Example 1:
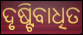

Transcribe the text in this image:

ଦୃଷ୍ଟିବାଧିତ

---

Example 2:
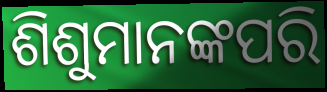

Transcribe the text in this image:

ଶିଶୁମାନଙ୍କପରି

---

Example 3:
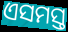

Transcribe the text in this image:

ଏସମସ୍ତ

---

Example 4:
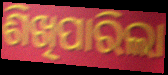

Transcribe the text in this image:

ଶିଖିପାରିଲା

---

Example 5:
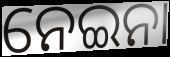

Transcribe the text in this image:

ନେଇନା